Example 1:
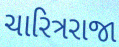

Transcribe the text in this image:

ચારિત્રરાજા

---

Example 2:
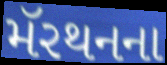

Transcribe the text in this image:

મૅરથનના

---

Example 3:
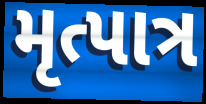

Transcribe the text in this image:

મૃત્પાત્ર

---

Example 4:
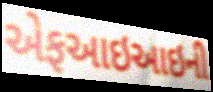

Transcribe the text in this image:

એફઆઇઆઇની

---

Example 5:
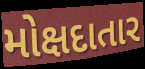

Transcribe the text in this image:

મોક્ષદાતાર